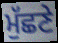
ਮੁੱਛਣੇ